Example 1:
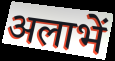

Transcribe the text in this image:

अलाभें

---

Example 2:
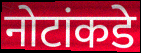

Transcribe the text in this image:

नोटांकडे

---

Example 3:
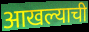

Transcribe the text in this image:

आखल्याची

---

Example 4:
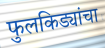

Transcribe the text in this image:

फुलकिड्यांचा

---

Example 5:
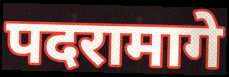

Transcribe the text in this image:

पदरामागे